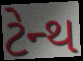
ટેન્થ